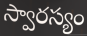
స్వారస్యం